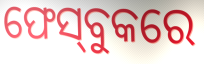
ଫେସ୍‌ବୁକରେ